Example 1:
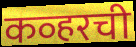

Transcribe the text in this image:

कव्हरची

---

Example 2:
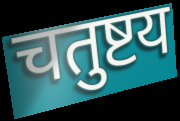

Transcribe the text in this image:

चतुष्टय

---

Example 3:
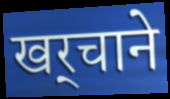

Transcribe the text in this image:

खर्चाने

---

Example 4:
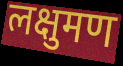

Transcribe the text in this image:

लक्षुमण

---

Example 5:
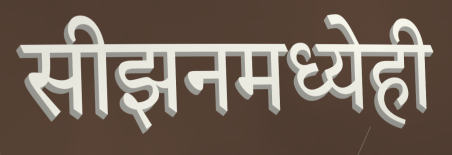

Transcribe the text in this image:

सीझनमध्येही